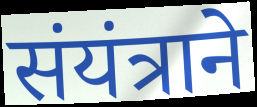
संयंत्राने